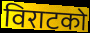
विराटको